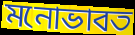
মনোভাবত